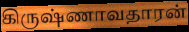
கிருஷ்ணாவதாரன்